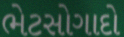
ભેટસોગાદો